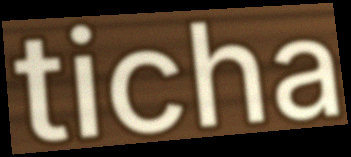
ticha